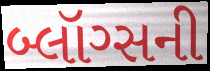
બ્લૉગ્સની